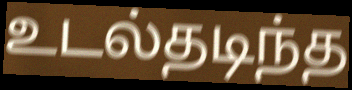
உடல்தடிந்த